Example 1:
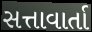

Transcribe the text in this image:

સત્તાવાર્તા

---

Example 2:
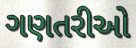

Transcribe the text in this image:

ગણતરીઓ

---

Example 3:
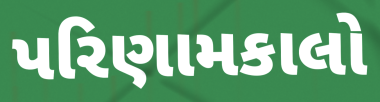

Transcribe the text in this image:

પરિણામકાલો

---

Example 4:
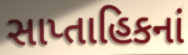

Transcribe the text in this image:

સાપ્તાહિકનાં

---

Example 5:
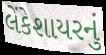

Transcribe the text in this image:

લેંકેશાયરનું